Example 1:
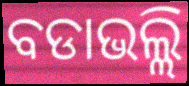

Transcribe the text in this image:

ବଡାଭଲ୍ଲି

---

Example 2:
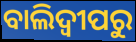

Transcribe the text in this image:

ବାଲିଦ୍ୱୀପରୁ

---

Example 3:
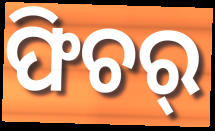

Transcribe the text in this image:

ଫିଚର୍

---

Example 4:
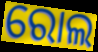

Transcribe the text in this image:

ରୋଲ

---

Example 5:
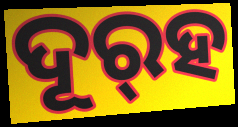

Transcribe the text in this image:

ଦୂର୍‌ହ